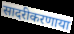
सादरीकरणाया